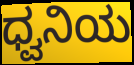
ಧ್ವನಿಯ